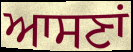
ਆਸਣਾਂ